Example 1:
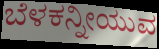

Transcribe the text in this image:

ಬೆಳಕನ್ನೀಯುವ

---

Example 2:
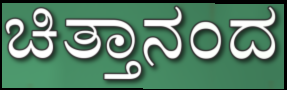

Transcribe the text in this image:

ಚಿತ್ತಾನಂದ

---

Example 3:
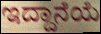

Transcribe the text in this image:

ಇದ್ದಾನೆಯೆ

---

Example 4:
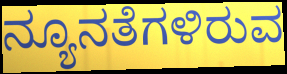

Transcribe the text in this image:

ನ್ಯೂನತೆಗಳಿರುವ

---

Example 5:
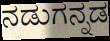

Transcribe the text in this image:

ನಡುಗನ್ನಡ